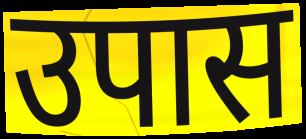
उपास